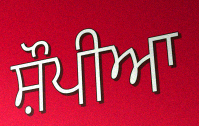
ਸ਼ੌਪੀਆ